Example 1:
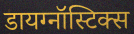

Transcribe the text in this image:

डायग्नॉस्टिक्स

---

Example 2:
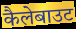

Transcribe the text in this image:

कैलेबाउट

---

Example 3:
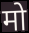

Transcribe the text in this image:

मो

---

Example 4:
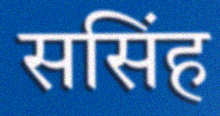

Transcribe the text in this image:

ससिंह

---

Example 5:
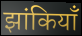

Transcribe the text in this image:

झांकियाँ